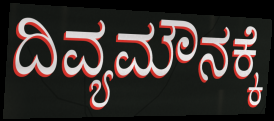
ದಿವ್ಯಮೌನಕ್ಕೆ